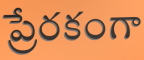
ప్రేరకంగా